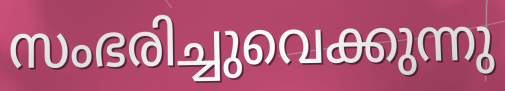
സംഭരിച്ചുവെക്കുന്നു